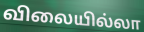
விலையில்லா